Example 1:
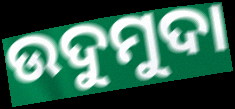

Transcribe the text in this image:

ଉଦୁମୁଦା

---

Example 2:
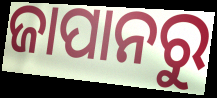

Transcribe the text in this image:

ଜାପାନରୁ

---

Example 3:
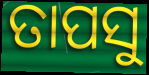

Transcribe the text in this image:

ତାପସୁ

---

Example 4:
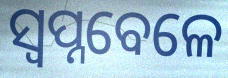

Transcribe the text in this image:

ସ୍ଵପ୍ନବେଳେ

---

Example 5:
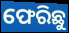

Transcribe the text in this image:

ଫେରିଛୁ